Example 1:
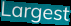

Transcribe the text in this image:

Largest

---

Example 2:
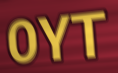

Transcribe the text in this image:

OYT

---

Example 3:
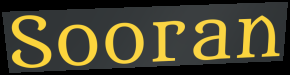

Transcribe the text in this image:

Sooran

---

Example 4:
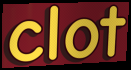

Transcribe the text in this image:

clot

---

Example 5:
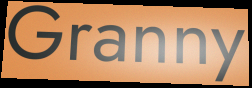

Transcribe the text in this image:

Granny